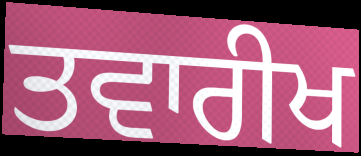
ਤਵਾਰੀਖ